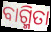
ବାଗ୍ମିତା